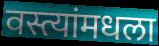
वस्त्यांमधला